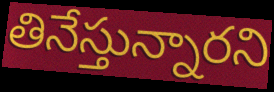
తినేస్తున్నారని